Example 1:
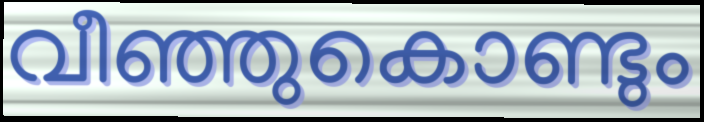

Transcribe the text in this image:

വീഞ്ഞുകൊണ്ടും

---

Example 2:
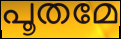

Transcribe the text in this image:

പൂതമേ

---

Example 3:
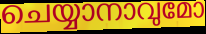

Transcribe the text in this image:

ചെയ്യാനാവുമോ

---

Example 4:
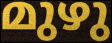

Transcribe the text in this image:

മുഴു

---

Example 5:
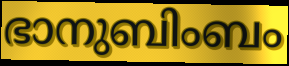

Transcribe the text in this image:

ഭാനുബിംബം